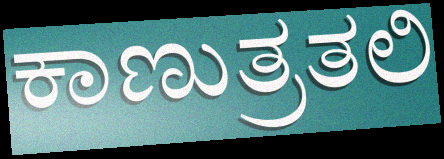
ಕಾಣುತ್ರತಲಿ